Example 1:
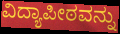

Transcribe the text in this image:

ವಿದ್ಯಾಪೀಠವನ್ನು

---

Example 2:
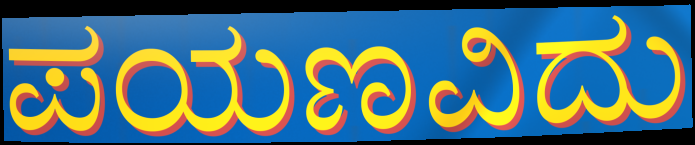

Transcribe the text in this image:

ಪಯಣವಿದು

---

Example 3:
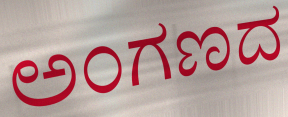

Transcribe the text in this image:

ಅಂಗಣದ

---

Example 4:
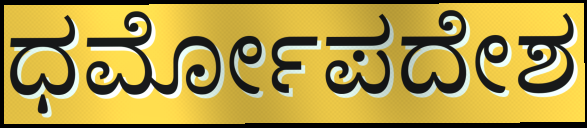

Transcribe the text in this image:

ಧರ್ಮೋಪದೇಶ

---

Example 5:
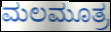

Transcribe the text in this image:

ಮಲಮೂತ್ರ